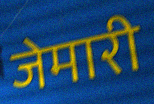
जेमारी